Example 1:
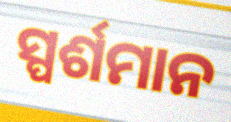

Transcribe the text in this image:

ସ୍ପର୍ଶମାନ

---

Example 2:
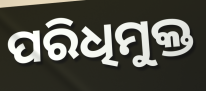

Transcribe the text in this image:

ପରିଧିମୁକ୍ତ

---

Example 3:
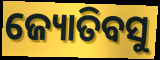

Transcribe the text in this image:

ଜ୍ୟୋତିବସୁ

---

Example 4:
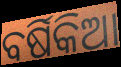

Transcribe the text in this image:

ବର୍ଷିକିଆ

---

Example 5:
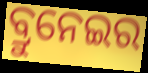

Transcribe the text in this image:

ବ୍ରୁନେଇର